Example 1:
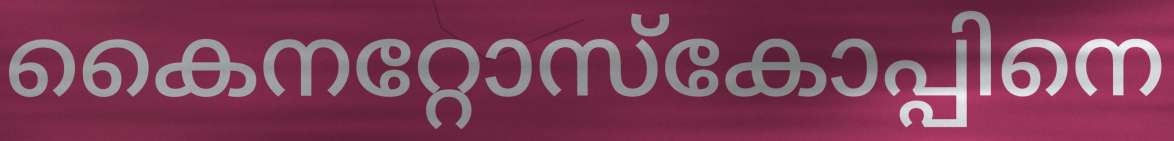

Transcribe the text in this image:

കൈനറ്റോസ്കോപ്പിനെ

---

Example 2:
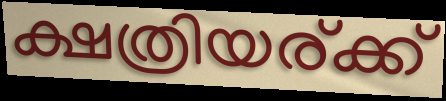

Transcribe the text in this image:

ക്ഷത്രിയര്ക്ക്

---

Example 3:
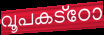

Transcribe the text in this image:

വൂപകട്ഠോ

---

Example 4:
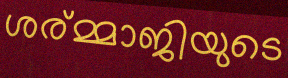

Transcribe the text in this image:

ശര്മ്മാജിയുടെ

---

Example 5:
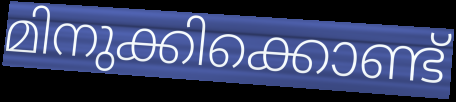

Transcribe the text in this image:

മിനുക്കിക്കൊണ്ട്